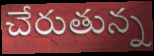
చేరుతున్న